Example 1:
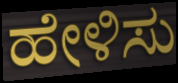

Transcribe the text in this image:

ಹೇಳಿಸು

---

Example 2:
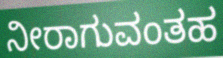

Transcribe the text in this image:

ನೀರಾಗುವಂತಹ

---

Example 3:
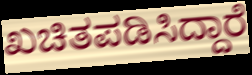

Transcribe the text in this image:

ಖಚಿತಪಡಿಸಿದ್ದಾರೆ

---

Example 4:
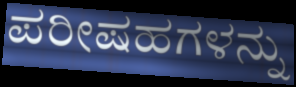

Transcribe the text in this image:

ಪರೀಷಹಗಳನ್ನು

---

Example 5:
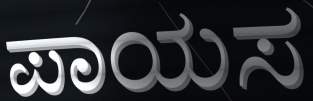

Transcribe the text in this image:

ಪಾಯಸ